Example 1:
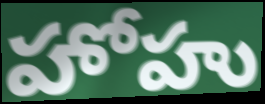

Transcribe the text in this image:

హోహు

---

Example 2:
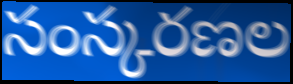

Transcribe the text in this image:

సంస్కరణల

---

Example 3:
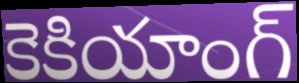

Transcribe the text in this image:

కెకియాంగ్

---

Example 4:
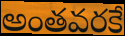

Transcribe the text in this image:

అంతవరకే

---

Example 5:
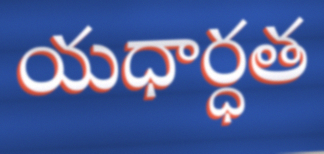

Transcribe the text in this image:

యధార్ధత